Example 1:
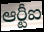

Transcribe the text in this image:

ఆర్టీఐ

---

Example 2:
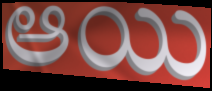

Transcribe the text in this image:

ఆయి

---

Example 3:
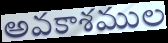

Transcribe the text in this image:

అవకాశముల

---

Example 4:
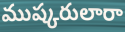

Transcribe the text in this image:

ముష్కరులారా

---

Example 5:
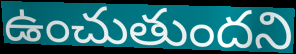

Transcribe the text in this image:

ఉంచుతుందని